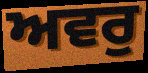
ਅਵਰੁ